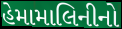
હેમામાલિનીનો